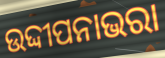
ଉଦ୍ଦୀପନାଭରା